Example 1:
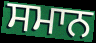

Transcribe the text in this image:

ਸਮਾਨ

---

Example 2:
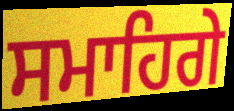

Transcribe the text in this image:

ਸਮਾਹਿਗੇ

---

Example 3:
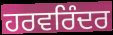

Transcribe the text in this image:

ਹਰਵਰਿੰਦਰ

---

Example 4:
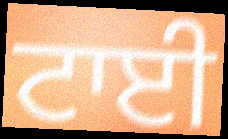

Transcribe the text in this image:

ਟਾਈ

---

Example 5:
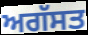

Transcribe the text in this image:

ਅਗੱਸਤ